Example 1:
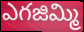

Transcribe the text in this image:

ఎగజిమ్మి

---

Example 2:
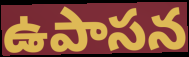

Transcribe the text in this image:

ఉపాసన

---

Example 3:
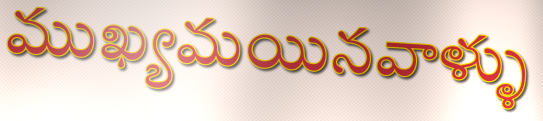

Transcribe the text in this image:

ముఖ్యమయినవాళ్ళు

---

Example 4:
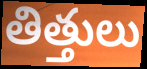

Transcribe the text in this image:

తిత్తులు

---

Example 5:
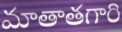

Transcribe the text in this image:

మాతాతగారి